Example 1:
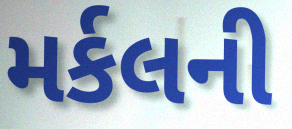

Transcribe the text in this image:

મર્કલની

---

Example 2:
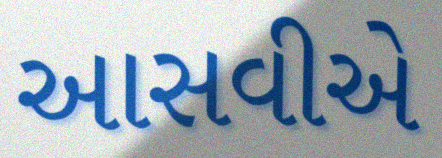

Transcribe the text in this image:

આસવીએ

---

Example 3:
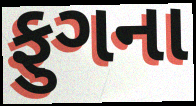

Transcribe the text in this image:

ફુગના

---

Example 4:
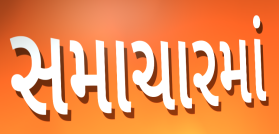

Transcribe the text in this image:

સમાચારમાં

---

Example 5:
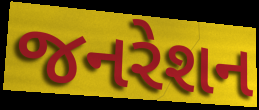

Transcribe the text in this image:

જનરેશન